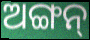
ଅଙ୍ଗନ୍